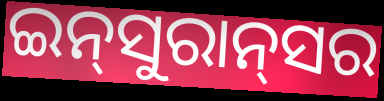
ଇନ୍‍ସୁରାନ୍‍ସର